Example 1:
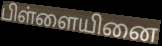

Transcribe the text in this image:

பிள்ளையினை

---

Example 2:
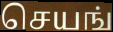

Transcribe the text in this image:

செயங்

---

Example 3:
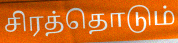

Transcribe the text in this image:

சிரத்தொடும்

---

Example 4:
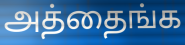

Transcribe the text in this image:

அத்தைங்க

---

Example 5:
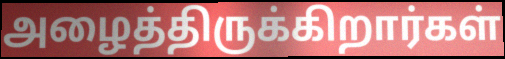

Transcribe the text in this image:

அழைத்திருக்கிறார்கள்